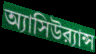
অ্যাসিউর‍্যান্স